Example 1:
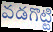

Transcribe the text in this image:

వడగొట్టి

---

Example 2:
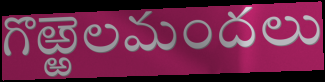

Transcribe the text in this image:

గొఱ్ఱెలమందలు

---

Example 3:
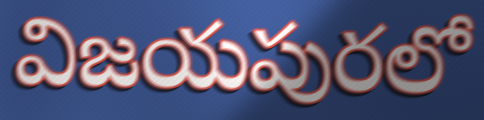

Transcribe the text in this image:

విజయపురలో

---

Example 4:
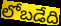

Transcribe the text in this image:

లోబడేది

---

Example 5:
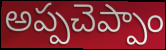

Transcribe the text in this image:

అప్పచెప్పాం